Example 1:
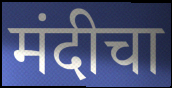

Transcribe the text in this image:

मंदीचा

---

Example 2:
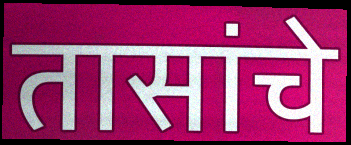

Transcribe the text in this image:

तासांचे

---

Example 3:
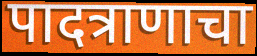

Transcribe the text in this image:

पादत्राणाचा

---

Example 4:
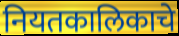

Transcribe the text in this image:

नियतकालिकाचे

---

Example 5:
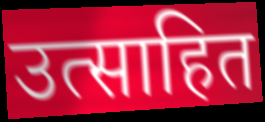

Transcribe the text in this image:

उत्साहित